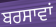
ਬਰਸਾਵਾਂ